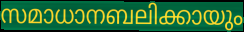
സമാധാനബലിക്കായും